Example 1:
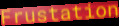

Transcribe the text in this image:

Frustation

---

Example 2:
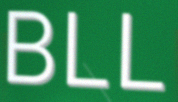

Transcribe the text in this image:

BLL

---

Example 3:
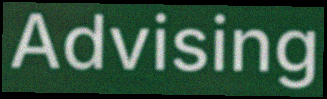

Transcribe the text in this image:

Advising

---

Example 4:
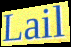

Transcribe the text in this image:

Lail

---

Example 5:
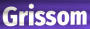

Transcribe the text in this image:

Grissom